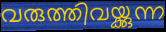
വരുത്തിവയ്ക്കുന്ന